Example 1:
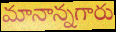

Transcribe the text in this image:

మానాన్నగారు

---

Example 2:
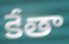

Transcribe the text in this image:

కేతా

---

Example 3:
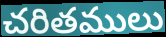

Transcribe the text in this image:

చరితములు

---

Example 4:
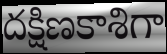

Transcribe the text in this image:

దక్షిణకాశిగా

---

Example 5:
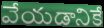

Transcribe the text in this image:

వేయడానికే